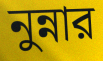
নুন্নার